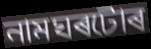
নামঘৰটোৰ